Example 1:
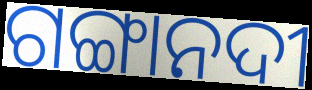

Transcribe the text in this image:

ଗଙ୍ଗାନଦୀ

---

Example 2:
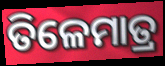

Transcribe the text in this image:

ତିଳେମାତ୍ର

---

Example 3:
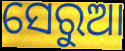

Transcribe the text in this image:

ସେରୁଆ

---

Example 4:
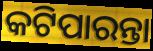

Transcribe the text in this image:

କଟିପାରନ୍ତା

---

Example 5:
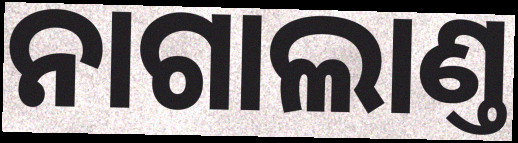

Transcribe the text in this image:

ନାଗାଲାଣ୍ତ